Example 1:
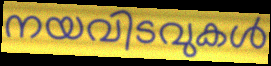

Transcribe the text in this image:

നയവിടവുകൾ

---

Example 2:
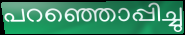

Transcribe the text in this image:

പറഞ്ഞൊപ്പിച്ചു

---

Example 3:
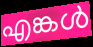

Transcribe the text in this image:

എങ്കൾ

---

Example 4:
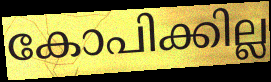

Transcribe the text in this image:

കോപിക്കില്ല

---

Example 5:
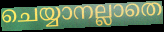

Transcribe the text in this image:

ചെയ്യാനല്ലാതെ